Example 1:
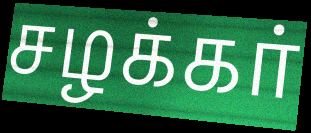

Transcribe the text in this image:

சழக்கர்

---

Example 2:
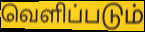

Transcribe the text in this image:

வெளிப்படும்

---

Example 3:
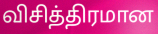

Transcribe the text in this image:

விசித்திரமான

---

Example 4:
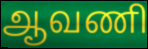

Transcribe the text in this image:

ஆவணி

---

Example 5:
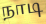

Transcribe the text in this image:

நாடி